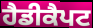
ਹੈਡੀਕੈਪਟ